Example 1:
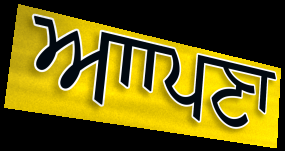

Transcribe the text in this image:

ਆਾਪਣਾ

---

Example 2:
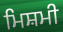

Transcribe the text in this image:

ਮਿਸ਼ਮੀ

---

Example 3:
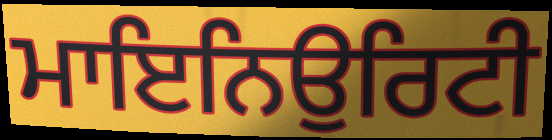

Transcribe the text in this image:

ਮਾਇਨਿਉਰਿਟੀ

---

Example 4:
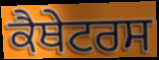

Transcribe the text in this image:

ਕੈਥੇਟਰਸ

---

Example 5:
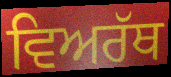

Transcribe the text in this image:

ਵਿਅਰੱਥ